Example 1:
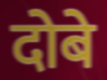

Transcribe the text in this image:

दोबे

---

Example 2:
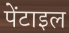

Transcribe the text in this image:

पेंटाइल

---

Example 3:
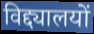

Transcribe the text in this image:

विद्द्यालयों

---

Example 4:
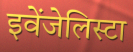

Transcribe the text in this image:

इवेंजेलिस्टा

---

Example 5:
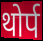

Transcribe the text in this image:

थोर्प